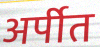
अर्पीत